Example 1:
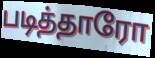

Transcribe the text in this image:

படித்தாரோ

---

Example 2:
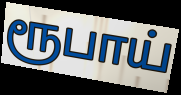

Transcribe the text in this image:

ரூபாய்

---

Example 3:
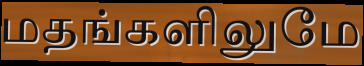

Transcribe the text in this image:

மதங்களிலுமே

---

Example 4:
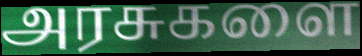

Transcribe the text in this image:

அரசுகளை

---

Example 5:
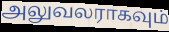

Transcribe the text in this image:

அலுவலராகவும்